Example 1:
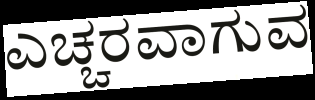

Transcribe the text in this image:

ಎಚ್ಚರವಾಗುವ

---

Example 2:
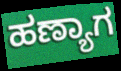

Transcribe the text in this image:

ಹಣ್ಯಾಗ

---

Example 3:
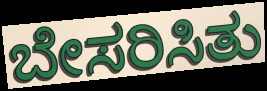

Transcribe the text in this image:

ಬೇಸರಿಸಿತು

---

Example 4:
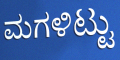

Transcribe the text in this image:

ಮಗಳಿಟ್ಟು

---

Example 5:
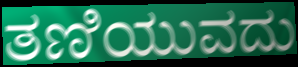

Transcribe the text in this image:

ತಣಿಯುವದು